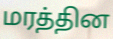
மரத்தின